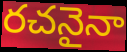
రచనైనా